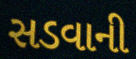
સડવાની